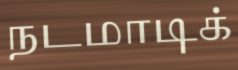
நடமாடிக்